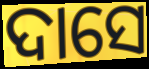
ଦାସେ